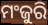
ମଂଜୁରି